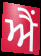
ਐੰ